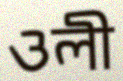
ওলী